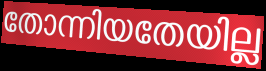
തോന്നിയതേയില്ല